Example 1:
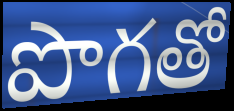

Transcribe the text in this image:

పొగతో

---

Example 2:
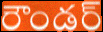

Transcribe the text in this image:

రౌండర్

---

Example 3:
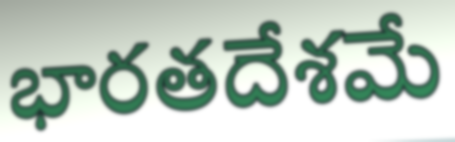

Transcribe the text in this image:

భారతదేశమే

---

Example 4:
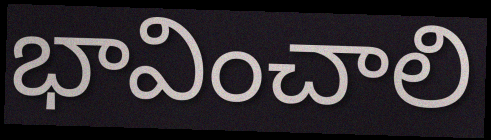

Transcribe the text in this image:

భావించాలి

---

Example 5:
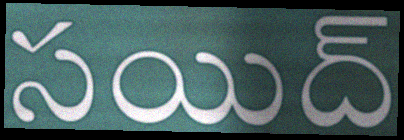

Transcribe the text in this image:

సయిద్